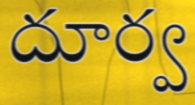
దూర్వ